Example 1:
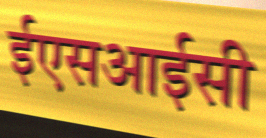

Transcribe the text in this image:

ईएसआईसी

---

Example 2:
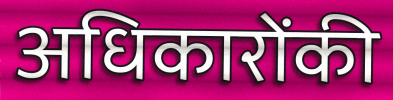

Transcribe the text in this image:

अधिकारोंकी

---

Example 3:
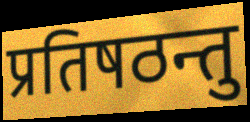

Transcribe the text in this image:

प्रतिषठन्तु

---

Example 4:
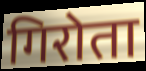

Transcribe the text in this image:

गिरोता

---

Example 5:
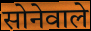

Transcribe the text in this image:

सोनेवाले